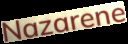
Nazarene